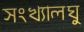
সংখ্যালঘু